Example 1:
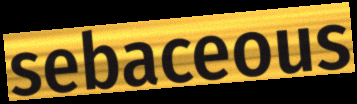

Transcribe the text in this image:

sebaceous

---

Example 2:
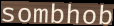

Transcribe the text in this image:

sombhob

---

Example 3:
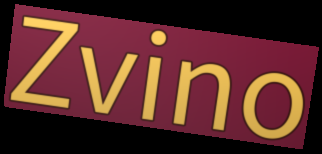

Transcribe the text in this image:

Zvino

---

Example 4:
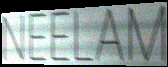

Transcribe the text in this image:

NEELAM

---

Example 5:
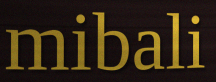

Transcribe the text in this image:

mibali